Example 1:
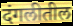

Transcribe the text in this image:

दंगलीतील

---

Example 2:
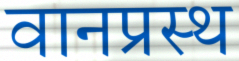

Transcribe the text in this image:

वानप्रस्थ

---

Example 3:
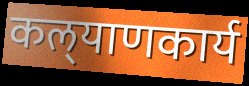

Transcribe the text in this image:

कल्याणकार्य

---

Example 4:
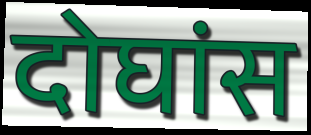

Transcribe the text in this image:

दोघांस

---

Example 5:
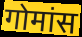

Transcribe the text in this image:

गोमांस